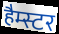
हैम्स्टर